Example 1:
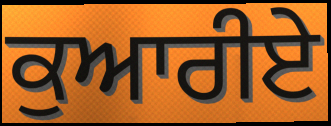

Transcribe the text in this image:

ਕੁਆਰੀਏ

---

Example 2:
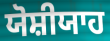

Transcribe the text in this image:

ਯੋਸ਼ੀਯਾਹ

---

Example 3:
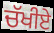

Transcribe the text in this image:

ਚੱਖੀਏ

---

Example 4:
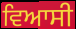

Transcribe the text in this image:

ਵਿਆਸੀ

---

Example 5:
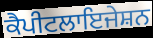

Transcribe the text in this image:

ਕੈਪੀਟਲਾਇਜੇਸ਼ਨ